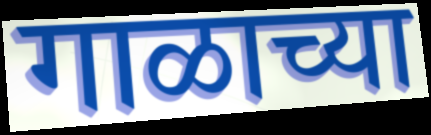
गाळाच्या